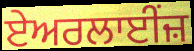
ਏਅਰਲਾਈਂਜ਼